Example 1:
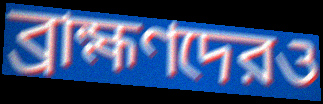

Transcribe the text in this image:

ব্রাহ্মণদেরও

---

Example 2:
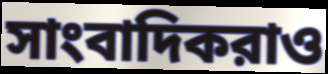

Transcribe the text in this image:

সাংবাদিকরাও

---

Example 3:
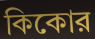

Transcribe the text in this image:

কিকোর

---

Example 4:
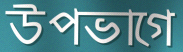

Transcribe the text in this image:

উপভাগে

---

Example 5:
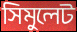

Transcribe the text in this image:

সিমুলেট